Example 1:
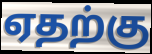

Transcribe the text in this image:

ஏதற்கு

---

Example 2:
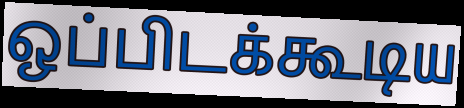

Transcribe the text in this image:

ஒப்பிடக்கூடிய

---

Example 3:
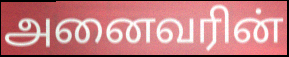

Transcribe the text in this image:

அனைவரின்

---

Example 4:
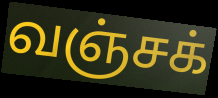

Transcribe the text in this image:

வஞ்சக்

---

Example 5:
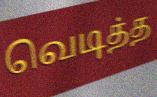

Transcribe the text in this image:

வெடித்த